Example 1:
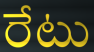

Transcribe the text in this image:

రేటు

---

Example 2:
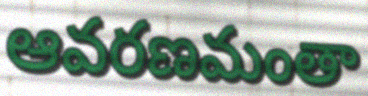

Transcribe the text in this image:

ఆవరణమంతా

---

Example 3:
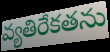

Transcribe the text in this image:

వ్యతిరేకతను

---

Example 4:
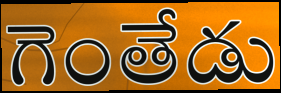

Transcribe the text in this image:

గెంతేడు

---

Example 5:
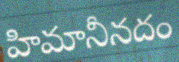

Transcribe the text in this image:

హిమానీనదం